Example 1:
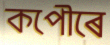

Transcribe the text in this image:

কপৌৰে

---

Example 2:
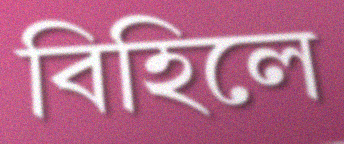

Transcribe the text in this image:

বিহিলে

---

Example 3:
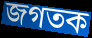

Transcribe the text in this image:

জগতক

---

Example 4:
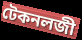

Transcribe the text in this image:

টেকনলজী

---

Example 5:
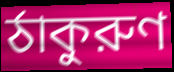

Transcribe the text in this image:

ঠাকুৰুণ